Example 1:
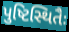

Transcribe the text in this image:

પુષ્ટિસ્થિતૈઃ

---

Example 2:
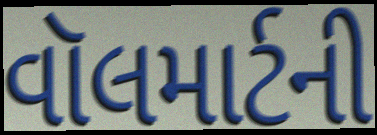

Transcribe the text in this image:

વૉલમાર્ટની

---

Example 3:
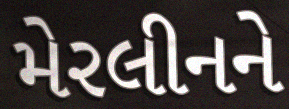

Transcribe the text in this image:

મેરલીનને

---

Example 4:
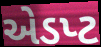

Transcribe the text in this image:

એડપ્ટ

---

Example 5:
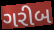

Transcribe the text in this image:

ગરીબ